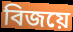
বিজয়ে